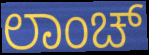
ಲಾಂಚ್